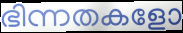
ഭിന്നതകളോ